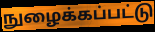
நுழைக்கப்பட்டு